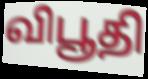
விபூதி